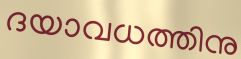
ദയാവധത്തിനു